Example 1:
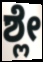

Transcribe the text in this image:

ಶ್ಲೇ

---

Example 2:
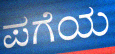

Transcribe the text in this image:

ಪಗೆಯ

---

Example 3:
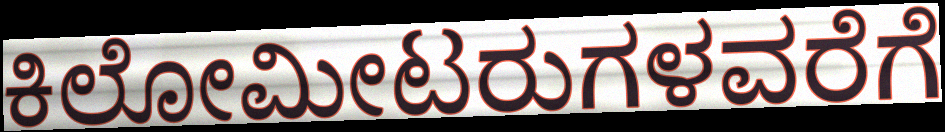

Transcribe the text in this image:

ಕಿಲೋಮೀಟರುಗಳವರೆಗೆ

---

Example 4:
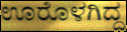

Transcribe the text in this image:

ಊರೊಳಗಿದ್ದ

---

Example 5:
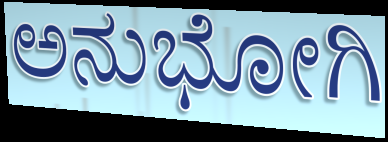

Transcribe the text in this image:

ಅನುಭೋಗಿ